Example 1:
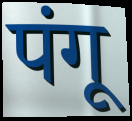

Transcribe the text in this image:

पंगू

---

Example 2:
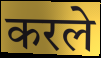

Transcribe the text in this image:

करले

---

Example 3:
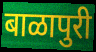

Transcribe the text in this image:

बाळापुरी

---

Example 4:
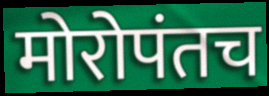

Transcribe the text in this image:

मोरोपंतच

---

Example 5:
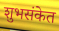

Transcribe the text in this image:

शुभसंकेत